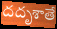
దదృశాతే